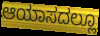
ಆಯಾಸದಲ್ಲೂ